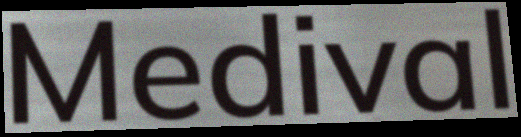
Medival